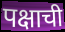
पक्षाची